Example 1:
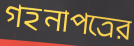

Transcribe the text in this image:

গহনাপত্রের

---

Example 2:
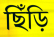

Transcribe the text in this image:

ছিঁড়ি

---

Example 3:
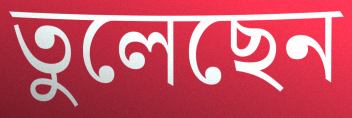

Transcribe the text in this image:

তুলেছেন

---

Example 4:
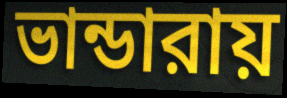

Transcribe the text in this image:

ভান্ডারায়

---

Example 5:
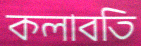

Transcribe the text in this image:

কলাবতি